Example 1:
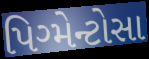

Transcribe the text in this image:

પિગ્મેન્ટોસા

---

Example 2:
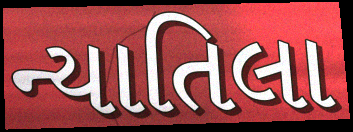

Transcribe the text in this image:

ન્યાતિલા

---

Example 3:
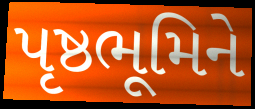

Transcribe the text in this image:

પૃષ્ઠભૂમિને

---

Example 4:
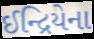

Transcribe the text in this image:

ઈન્દ્રિયેના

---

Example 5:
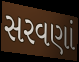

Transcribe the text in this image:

સરવણાં